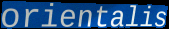
orientalis